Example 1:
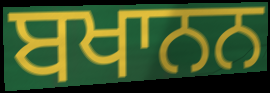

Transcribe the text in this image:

ਬਖਾਨਨ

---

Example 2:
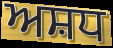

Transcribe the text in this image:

ਅਸ਼ਧ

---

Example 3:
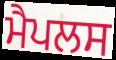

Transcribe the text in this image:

ਮੈਪਲਸ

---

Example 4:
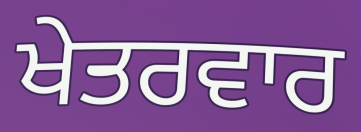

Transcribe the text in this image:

ਖੇਤਰਵਾਰ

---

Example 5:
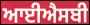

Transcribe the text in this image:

ਆਈਐਸਬੀ